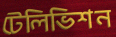
টেলিভিশন